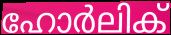
ഹോർലിക്